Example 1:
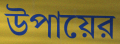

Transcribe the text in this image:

উপায়ের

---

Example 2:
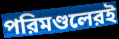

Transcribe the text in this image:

পরিমণ্ডলেরই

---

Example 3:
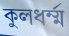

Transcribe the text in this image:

কুলধর্ম্ম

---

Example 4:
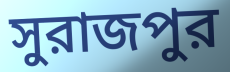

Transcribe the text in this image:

সুরাজপুর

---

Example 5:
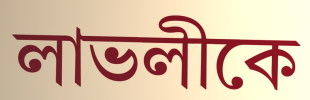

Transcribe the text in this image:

লাভলীকে